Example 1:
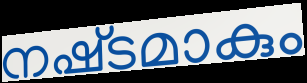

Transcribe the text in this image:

നഷ്‌ടമാകും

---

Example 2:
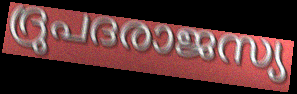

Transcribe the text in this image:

ദ്രുപദരാജസ്യ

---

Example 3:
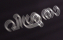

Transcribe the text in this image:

വിശ്രുതാ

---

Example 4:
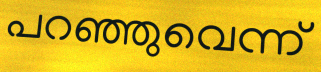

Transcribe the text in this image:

പറഞ്ഞുവെന്ന്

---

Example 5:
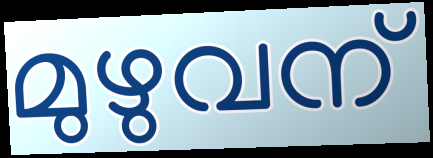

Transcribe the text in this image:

മുഴുവന്